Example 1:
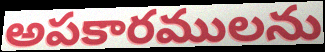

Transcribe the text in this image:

అపకారములను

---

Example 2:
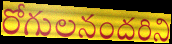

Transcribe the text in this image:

రోగులనందరిని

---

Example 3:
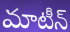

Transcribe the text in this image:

మాటీన్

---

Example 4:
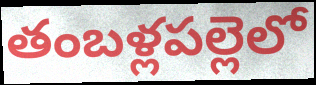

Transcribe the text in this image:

తంబళ్లపల్లెలో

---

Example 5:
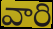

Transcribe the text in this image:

వారి